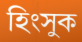
হিংসুক